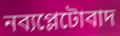
নব্যপ্লেটোবাদ